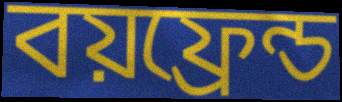
বয়ফ্রেন্ড